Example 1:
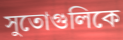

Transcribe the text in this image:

সুতোগুলিকে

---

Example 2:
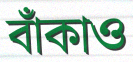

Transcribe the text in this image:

বাঁকাও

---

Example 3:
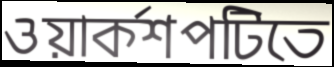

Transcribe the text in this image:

ওয়ার্কশপটিতে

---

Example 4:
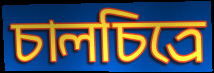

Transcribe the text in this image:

চালচিত্রে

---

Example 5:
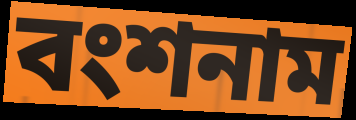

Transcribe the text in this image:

বংশনাম